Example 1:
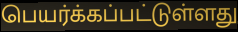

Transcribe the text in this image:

பெயர்க்கப்பட்டுள்ளது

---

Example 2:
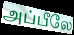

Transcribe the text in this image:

அப்பீலே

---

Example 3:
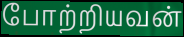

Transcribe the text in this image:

போற்றியவன்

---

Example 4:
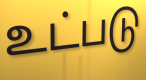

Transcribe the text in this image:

உட்படு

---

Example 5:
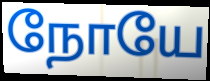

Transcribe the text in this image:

நோயே